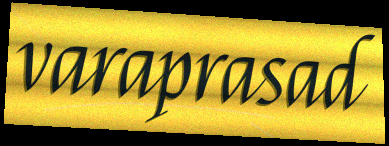
varaprasad